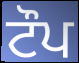
ਟੌਪ